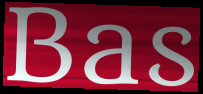
Bas